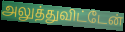
அலுத்துவிட்டேன்